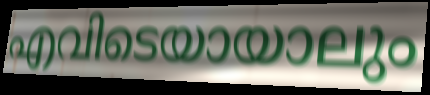
എവിടെയായാലും